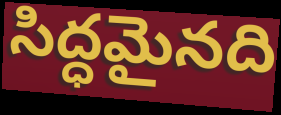
సిద్ధమైనది